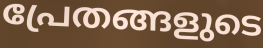
പ്രേതങ്ങളുടെ